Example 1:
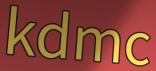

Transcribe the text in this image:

kdmc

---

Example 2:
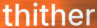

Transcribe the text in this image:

thither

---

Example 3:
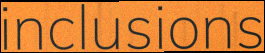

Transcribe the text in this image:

inclusions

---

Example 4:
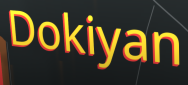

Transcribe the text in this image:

Dokiyan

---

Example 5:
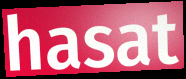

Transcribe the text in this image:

hasat